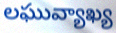
లఘువ్యాఖ్య